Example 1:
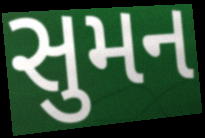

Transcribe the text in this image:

સુમન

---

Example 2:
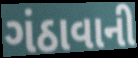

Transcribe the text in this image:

ગંઠાવાની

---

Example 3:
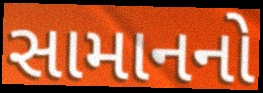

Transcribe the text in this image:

સામાનનો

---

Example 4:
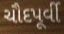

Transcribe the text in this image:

ચૌદપૂર્વી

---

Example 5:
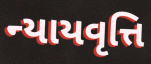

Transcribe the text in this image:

ન્યાયવૃત્તિ